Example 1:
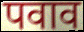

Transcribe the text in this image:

पवाव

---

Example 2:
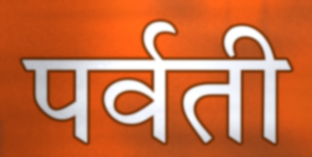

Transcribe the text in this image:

पर्वती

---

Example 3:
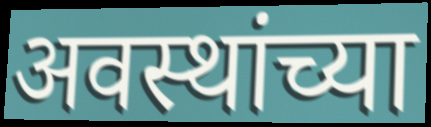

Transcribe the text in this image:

अवस्थांच्या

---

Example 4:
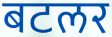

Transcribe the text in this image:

बटलर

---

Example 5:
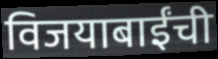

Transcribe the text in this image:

विजयाबाईंची